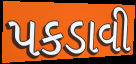
પકડાવી